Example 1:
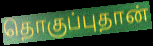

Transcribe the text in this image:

தொகுப்புதான்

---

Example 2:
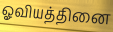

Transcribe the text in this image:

ஓவியத்தினை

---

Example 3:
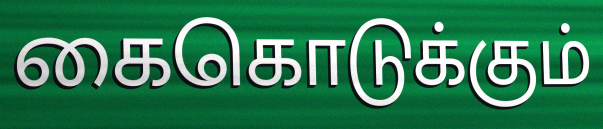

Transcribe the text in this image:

கைகொடுக்கும்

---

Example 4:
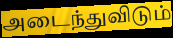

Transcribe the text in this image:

அடைந்துவிடும்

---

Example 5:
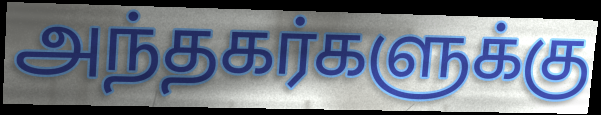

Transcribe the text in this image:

அந்தகர்களுக்கு